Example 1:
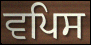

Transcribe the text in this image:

ਵਪਿਸ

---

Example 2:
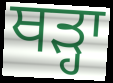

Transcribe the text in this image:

ਥੜ੍ਹਾ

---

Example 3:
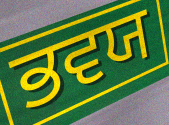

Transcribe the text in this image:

ਭਵਯ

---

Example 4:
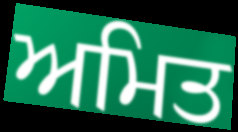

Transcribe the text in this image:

ਅਮਿਤ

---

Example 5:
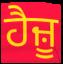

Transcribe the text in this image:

ਹੈਜ਼ੂ